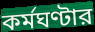
কর্মঘণ্টার